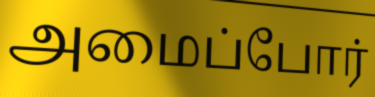
அமைப்போர்